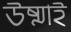
উষ্মাই